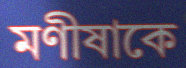
মণীষাকে